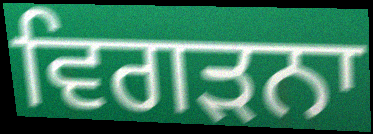
ਵਿਗੜਨਾ